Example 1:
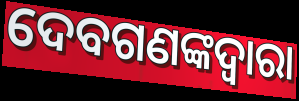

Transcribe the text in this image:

ଦେବଗଣଙ୍କଦ୍ୱାରା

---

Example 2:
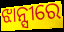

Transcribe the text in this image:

ଝାନ୍ସୀରେ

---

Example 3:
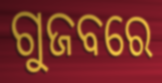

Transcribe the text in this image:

ଗୁଜବରେ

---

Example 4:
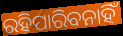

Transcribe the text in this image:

ରହିପାରିବନାହିଁ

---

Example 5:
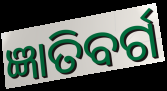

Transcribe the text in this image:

ଜ୍ଞାତିବର୍ଗ